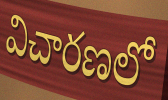
విచారణలో